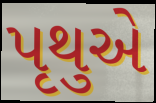
પૃથુએ